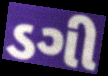
ડગી